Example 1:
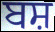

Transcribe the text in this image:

ਬਸ਼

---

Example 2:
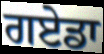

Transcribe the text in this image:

ਗਏਡਾ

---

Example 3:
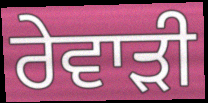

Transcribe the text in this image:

ਰੇਵਾਡ਼ੀ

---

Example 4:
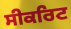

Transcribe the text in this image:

ਸੀਕਰਿਟ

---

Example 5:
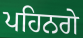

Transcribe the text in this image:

ਪਹਿਨਗੇ